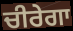
ਚੀਰੇਗਾ